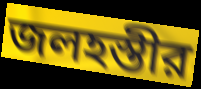
জলহস্তীর